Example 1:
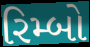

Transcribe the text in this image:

રિમ્બો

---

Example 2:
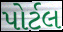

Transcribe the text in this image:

પોર્ટલ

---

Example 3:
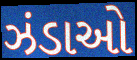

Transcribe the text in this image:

ઝંડાઓ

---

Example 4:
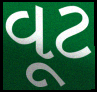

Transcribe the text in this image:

વૂટ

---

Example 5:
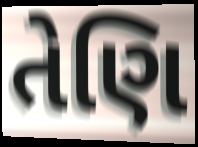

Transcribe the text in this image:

તેણિ